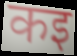
कइ